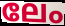
ലേം